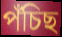
পঁচিছ